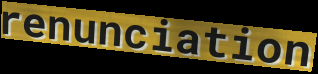
renunciation